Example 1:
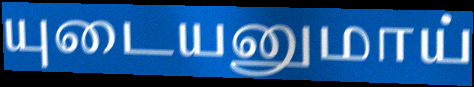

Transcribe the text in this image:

யுடையனுமாய்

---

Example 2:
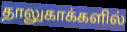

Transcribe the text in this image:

தாலுகாக்களில்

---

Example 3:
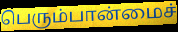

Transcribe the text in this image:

பெரும்பான்மைச்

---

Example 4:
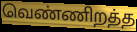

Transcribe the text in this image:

வெண்ணிறத்த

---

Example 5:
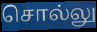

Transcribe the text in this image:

சொல்லு